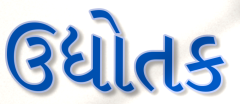
ઉદ્યોતક